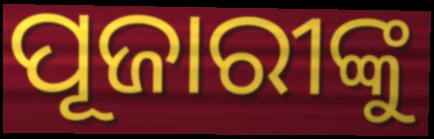
ପୂଜାରୀଙ୍କୁ